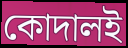
কোদালই